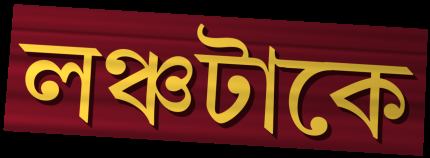
লঞ্চটাকে